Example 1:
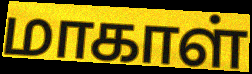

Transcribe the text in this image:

மாகாள்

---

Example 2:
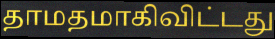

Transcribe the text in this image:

தாமதமாகிவிட்டது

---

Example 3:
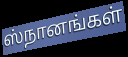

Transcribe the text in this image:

ஸ்நானங்கள்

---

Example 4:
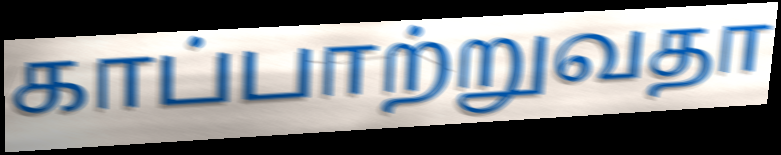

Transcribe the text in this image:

காப்பாற்றுவதா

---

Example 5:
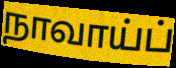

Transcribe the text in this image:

நாவாய்ப்